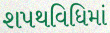
શપથવિધિમાં